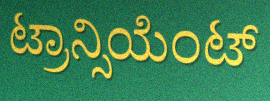
ಟ್ರಾನ್ಸಿಯೆಂಟ್